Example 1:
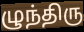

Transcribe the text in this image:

ழுந்திரு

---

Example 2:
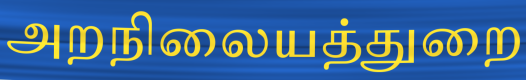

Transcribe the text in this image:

அறநிலையத்துறை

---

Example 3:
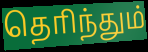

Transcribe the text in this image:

தெரிந்தும்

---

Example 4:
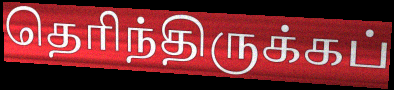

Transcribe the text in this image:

தெரிந்திருக்கப்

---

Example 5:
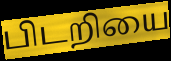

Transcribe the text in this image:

பிடறியை